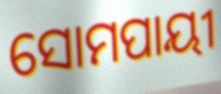
ସୋମପାୟୀ